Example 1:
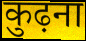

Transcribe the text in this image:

कुढ़ना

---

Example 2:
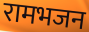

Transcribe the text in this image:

रामभजन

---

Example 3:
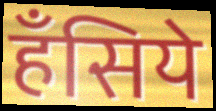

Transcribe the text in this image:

हँसिये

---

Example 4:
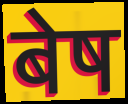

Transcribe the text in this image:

बेष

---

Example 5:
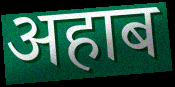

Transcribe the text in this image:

अहाब